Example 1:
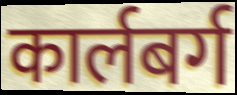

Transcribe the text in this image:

कार्लबर्ग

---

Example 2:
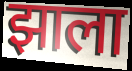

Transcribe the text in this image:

झाला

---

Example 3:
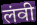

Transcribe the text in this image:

लंवी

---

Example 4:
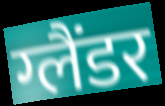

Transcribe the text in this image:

ग्लैंडर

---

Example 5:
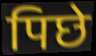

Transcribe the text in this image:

पिछे